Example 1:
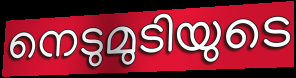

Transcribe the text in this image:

നെടുമുടിയുടെ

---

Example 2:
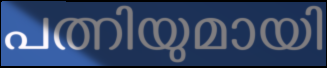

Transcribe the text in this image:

പത്നിയുമായി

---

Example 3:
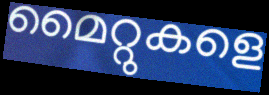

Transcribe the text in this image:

മൈറ്റുകളെ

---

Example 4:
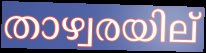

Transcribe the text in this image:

താഴ്വരയില്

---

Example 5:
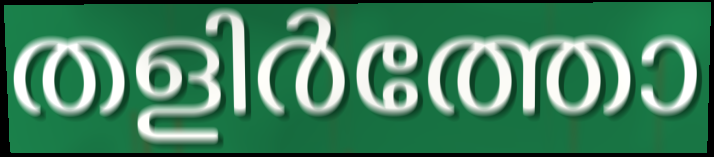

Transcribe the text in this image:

തളിർത്തോ